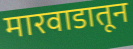
मारवाडातून